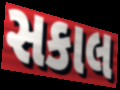
સકાલ